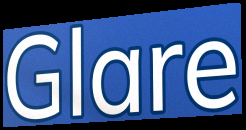
Glare